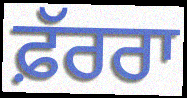
ਫ਼ੱਰਰਾ